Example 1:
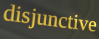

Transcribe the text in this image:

disjunctive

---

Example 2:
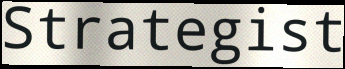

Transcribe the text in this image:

Strategist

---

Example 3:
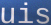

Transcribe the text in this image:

uis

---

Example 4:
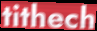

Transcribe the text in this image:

tithech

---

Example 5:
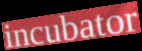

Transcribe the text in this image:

incubator